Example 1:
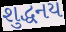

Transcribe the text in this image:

શુદ્ધનય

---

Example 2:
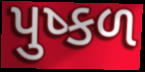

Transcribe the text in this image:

પુષ્કળ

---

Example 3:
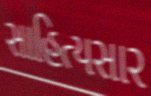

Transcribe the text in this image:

સાહિત્યસાર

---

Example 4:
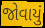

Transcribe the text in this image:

જોવાયું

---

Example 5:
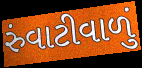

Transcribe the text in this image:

રુંવાટીવાળું